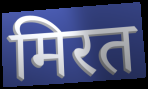
मिरत